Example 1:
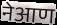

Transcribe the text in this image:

नेआण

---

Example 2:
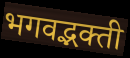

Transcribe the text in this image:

भगवद्भक्ती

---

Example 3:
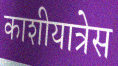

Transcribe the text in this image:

काशीयात्रेस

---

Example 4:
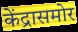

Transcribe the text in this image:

केंद्रासमोर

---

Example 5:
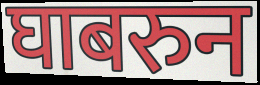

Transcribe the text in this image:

घाबरुन